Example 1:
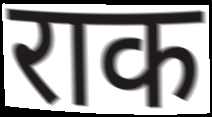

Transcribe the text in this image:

राक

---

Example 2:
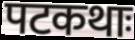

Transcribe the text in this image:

पटकथाः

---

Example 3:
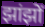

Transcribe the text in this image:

झांझों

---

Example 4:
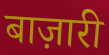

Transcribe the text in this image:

बाज़ारी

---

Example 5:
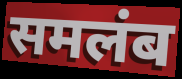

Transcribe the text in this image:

समलंब